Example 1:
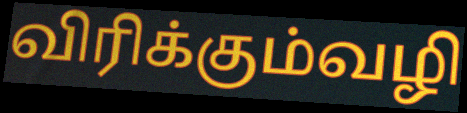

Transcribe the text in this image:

விரிக்கும்வழி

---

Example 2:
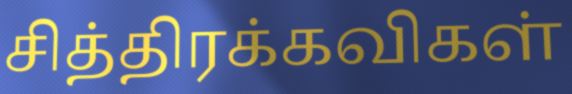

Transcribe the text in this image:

சித்திரக்கவிகள்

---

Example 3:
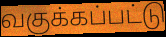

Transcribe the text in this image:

வகுக்கப்பட்டு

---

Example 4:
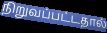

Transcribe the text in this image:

நிறுவப்பட்டதால்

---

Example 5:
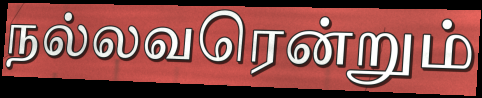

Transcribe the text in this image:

நல்லவரென்றும்